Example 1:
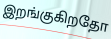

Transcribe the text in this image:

இறங்குகிறதோ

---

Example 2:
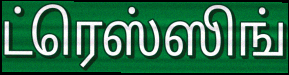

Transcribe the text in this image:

ட்ரெஸ்ஸிங்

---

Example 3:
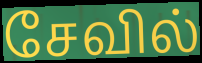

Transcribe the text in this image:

சேவில்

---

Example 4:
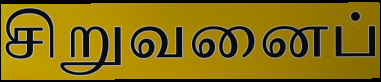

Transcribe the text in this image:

சிறுவனைப்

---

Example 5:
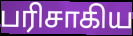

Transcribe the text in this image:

பரிசாகிய